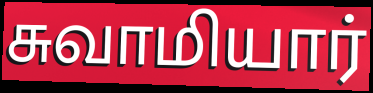
சுவாமியார்